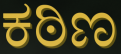
ಕಠಿಣ